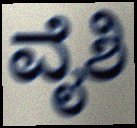
ವೈಶಿ